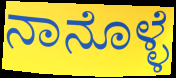
ನಾನೊಳ್ಳೆ